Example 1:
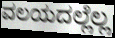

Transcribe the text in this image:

ವಲಯದಲ್ಲೆಲ್ಲ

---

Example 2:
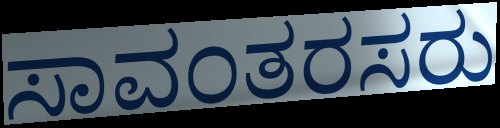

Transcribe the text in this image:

ಸಾವಂತರಸರು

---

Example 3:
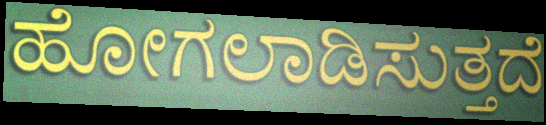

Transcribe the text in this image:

ಹೋಗಲಾಡಿಸುತ್ತದೆ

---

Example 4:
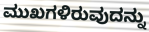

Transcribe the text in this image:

ಮುಖಗಳಿರುವುದನ್ನು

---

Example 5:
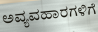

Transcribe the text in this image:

ಅವ್ಯವಹಾರಗಳಿಗೆ